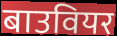
बाउवियर